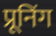
प्रूनिंग